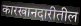
कारखानदारीतील